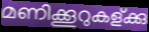
മണിക്കൂറുകള്ക്കു